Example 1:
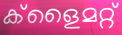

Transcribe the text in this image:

ക്ളൈമറ്റ്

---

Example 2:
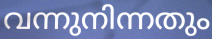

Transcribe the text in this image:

വന്നുനിന്നതും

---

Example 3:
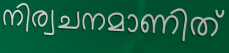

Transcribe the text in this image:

നിര്വചനമാണിത്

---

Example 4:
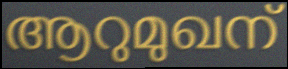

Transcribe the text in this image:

ആറുമുഖന്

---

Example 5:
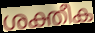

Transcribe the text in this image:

ശക്തീക